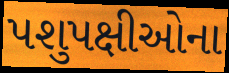
પશુપક્ષીઓના